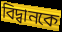
বিদ্বানকে